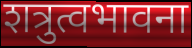
शत्रुत्वभावना